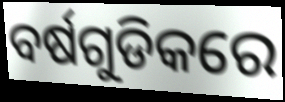
ବର୍ଷଗୁଡିକରେ